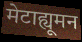
मेटाह्यूमन